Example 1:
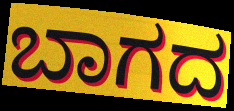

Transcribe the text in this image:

ಬಾಗದ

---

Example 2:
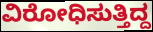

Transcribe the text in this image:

ವಿರೋಧಿಸುತ್ತಿದ್ದ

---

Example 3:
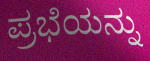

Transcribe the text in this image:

ಪ್ರಭೆಯನ್ನು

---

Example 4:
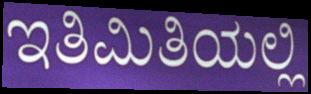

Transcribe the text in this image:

ಇತಿಮಿತಿಯಲ್ಲಿ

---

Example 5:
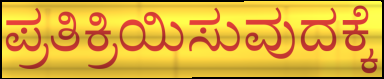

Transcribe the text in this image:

ಪ್ರತಿಕ್ರಿಯಿಸುವುದಕ್ಕೆ